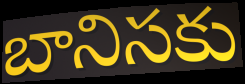
బానిసకు